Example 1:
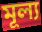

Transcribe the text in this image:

মূল্য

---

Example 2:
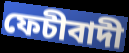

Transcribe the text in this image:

ফেচীবাদী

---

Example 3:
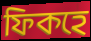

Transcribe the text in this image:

ফিকহে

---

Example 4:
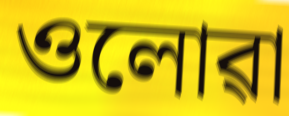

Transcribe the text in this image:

ওলোৱা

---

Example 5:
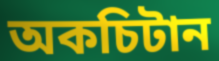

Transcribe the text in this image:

অকচিটান